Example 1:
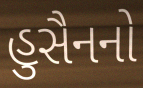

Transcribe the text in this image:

હુસૈનનો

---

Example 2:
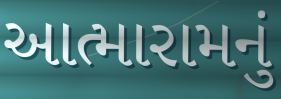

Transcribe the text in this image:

આત્મારામનું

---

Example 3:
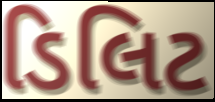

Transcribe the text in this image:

ડિલિટ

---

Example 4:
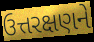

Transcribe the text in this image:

ઉત્તરક્ષણને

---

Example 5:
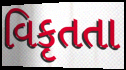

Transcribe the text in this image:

વિકૃતતા